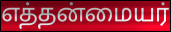
எத்தன்மையர்